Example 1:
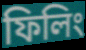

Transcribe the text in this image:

ফিলিং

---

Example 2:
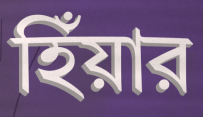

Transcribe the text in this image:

হিঁয়ার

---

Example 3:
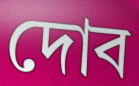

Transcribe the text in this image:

দোব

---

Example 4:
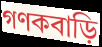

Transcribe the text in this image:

গণকবাড়ি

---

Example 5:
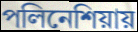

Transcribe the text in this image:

পলিনেশিয়ায়